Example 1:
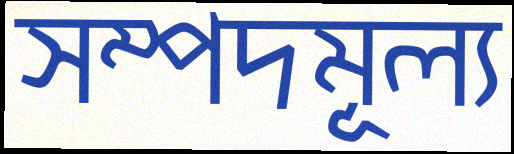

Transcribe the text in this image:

সম্পদমূল্য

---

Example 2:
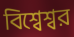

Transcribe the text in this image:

বিশ্বেশ্বর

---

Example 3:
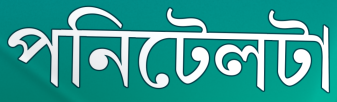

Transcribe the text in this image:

পনিটেলটা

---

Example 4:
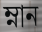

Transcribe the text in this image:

ম্নান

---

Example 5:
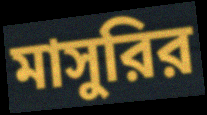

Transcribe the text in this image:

মাসুরির